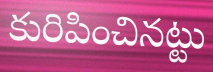
కురిపించినట్టు